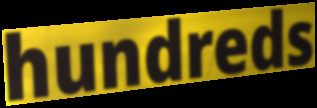
hundreds